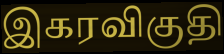
இகரவிகுதி